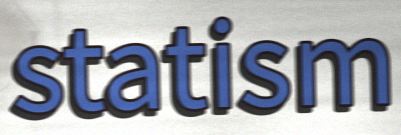
statism